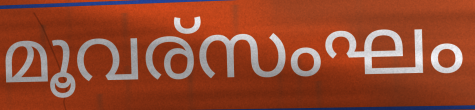
മൂവര്സംഘം